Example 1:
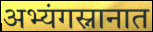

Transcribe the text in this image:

अभ्यंगस्नानात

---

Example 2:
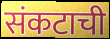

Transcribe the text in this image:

संकटाची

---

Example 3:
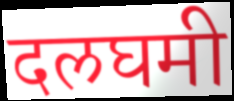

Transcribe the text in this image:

दलघमी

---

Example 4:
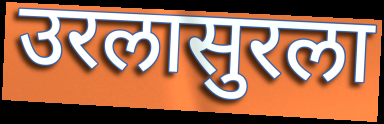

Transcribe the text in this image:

उरलासुरला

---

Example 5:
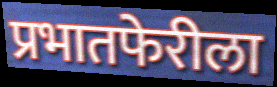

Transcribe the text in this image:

प्रभातफेरीला